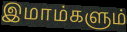
இமாம்களும்